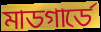
মাডগার্ডে